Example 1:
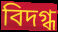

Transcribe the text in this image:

বিদগ্ধ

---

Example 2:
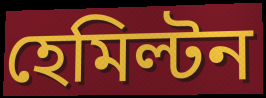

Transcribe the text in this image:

হেমিল্টন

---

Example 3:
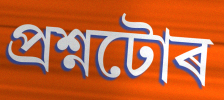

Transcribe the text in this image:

প্ৰশ্নটোৰ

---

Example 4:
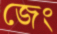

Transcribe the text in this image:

জেং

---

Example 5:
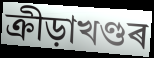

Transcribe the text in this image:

ক্ৰীড়াখণ্ডৰ